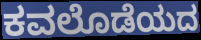
ಕವಲೊಡೆಯದ